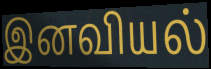
இனவியல்